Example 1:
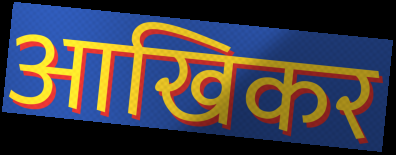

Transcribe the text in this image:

आखिकर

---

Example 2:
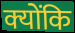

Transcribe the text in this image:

क्‍योंकि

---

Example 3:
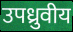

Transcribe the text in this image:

उपध्रुवीय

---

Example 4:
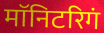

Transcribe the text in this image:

मॉनिटरिगं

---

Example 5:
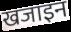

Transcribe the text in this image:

खजाइन